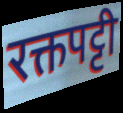
रक्तपट्टी